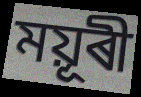
ময়ূৰী